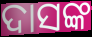
ଦାସଙ୍କ